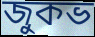
জুকভ